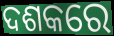
ଦଶକରେ